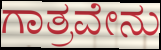
ಗಾತ್ರವೇನು